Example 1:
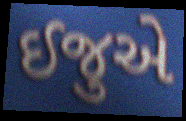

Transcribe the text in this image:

ઈજુએ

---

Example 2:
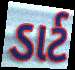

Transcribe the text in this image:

ડાર્ટ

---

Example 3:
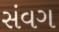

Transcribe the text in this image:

સંવગ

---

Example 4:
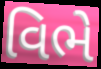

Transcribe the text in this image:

વિભે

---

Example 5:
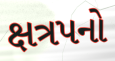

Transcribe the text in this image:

ક્ષત્રપનો